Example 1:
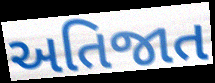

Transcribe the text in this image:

અતિજાત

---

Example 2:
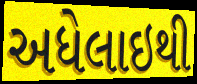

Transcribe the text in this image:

અધેલાઇથી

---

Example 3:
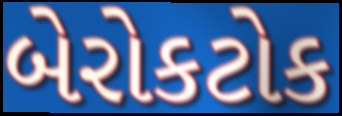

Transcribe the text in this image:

બેરોકટોક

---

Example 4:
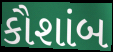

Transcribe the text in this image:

કૌશાંબ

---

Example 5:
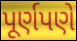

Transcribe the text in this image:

પૂર્ણપણે